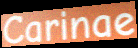
Carinae